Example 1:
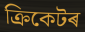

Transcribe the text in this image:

ক্ৰিকেটৰ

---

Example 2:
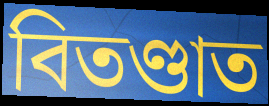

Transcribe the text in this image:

বিতণ্ডাত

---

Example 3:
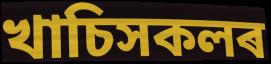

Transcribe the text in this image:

খাচিসকলৰ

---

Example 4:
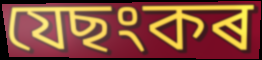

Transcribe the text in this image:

যেছংকৰ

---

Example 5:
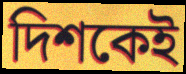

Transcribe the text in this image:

দিশকেই